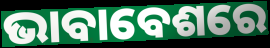
ଭାବାବେଶରେ